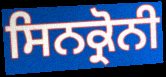
ਸਿਨਕ੍ਰੋਨੀ